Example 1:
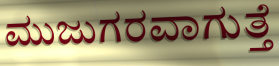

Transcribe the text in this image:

ಮುಜುಗರವಾಗುತ್ತೆ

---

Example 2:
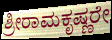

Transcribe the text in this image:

ಶ್ರೀರಾಮಕೃಷ್ಣರೇ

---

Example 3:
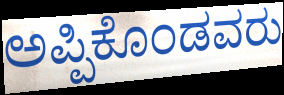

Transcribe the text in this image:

ಅಪ್ಪಿಕೊಂಡವರು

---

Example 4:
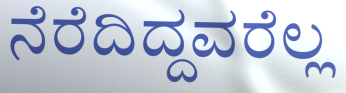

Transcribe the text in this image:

ನೆರೆದಿದ್ದವರೆಲ್ಲ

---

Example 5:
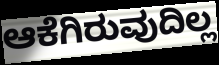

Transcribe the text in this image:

ಆಕೆಗಿರುವುದಿಲ್ಲ